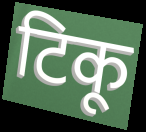
टिकू